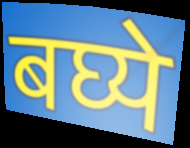
बघ्ये